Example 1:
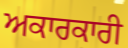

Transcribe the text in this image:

ਅਕਾਰਕਾਰੀ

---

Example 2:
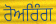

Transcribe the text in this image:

ਰੋਅਰਿੰਗ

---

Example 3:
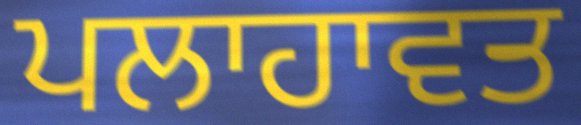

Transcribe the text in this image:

ਪਲਾਹਾਵਤ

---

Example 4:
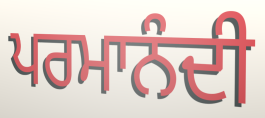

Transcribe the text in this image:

ਪਰਮਾਨੰਦੀ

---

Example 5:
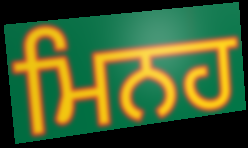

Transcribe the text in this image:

ਮਿਨਹ